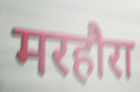
मरहौरा